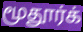
மூதூர்க்